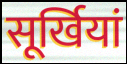
सूर्खियां